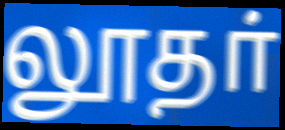
லூதர்